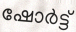
ഷോർട്ട്